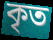
কৃত